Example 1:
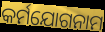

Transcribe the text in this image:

କର୍ମଯୋଗନାମ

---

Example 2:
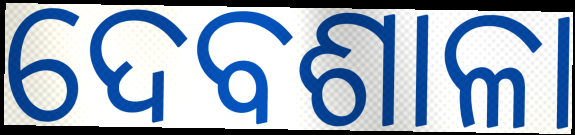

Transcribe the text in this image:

ଦେବଶାଳା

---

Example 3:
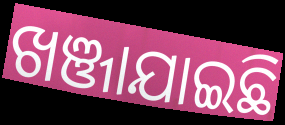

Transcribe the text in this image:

ଖଞ୍ଜାଯାଇଛି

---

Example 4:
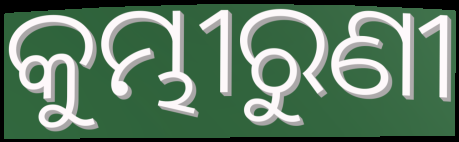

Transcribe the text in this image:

କୁମ୍ଭୀରୁଣୀ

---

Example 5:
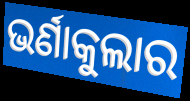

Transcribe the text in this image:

ଭର୍ଣାକୁଲାର